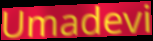
Umadevi